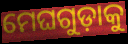
ମେଘଗୁଡ଼ାକୁ